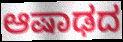
ಆಷಾಢದ